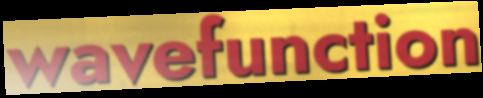
wavefunction